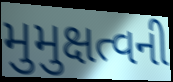
મુમુક્ષત્વની